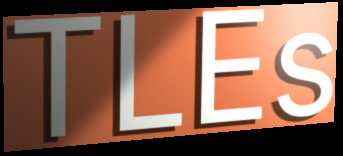
TLEs